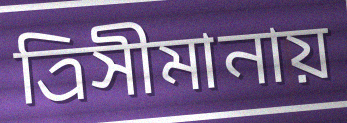
ত্রিসীমানায়